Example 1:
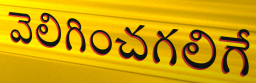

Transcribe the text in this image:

వెలిగించగలిగే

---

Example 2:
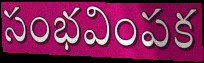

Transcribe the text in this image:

సంభవింపక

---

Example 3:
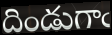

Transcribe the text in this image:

దిండుగాఁ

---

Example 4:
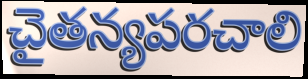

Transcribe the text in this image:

చైతన్యపరచాలి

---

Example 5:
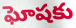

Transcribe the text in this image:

ఘోషకు